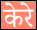
केरे